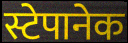
स्टेपानेक